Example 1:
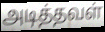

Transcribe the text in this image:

அடித்தவள்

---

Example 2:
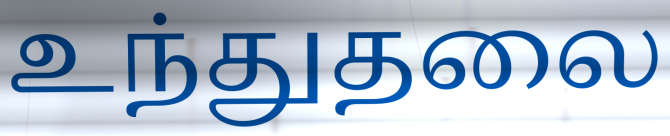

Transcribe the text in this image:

உந்துதலை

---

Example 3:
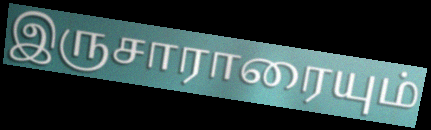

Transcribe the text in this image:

இருசாராரையும்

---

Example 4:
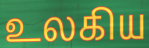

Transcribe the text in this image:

உலகிய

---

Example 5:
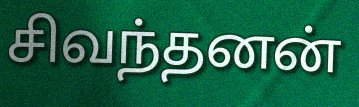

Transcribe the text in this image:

சிவந்தனன்